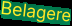
Belagere